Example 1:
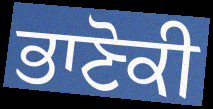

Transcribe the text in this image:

ਭਾਣੋਕੀ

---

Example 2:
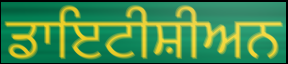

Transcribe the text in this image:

ਡਾਇਟੀਸ਼ੀਅਨ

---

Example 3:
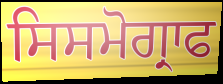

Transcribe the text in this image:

ਸਿਸਮੋਗ੍ਰਾਫ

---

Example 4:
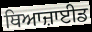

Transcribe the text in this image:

ਥਿਆਜ਼ਾਈਡ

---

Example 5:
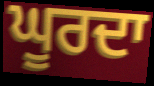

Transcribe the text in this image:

ਘੂਰਦਾ